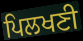
ਪਿਲਖਣੀ